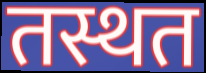
तस्थत